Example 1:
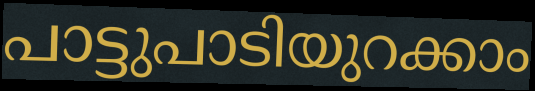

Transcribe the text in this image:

പാട്ടുപാടിയുറക്കാം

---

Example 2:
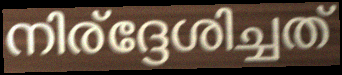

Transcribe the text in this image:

നിര്ദ്ദേശിച്ചത്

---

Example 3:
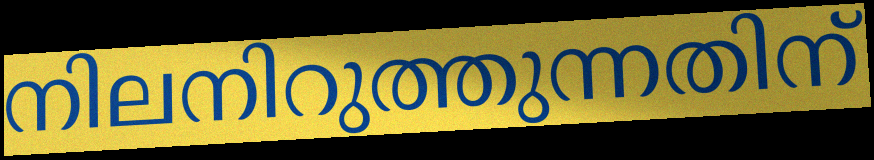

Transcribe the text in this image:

നിലനിറുത്തുന്നതിന്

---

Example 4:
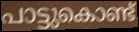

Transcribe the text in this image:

പാട്ടുകൊണ്ട്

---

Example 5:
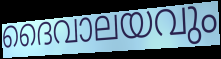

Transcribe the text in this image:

ദൈവാലയവും